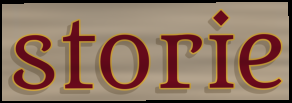
storie